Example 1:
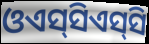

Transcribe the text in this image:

ଓଏସ୍‌ସିଏସ୍‌ସି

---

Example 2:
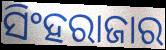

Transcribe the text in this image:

ସିଂହରାଜାର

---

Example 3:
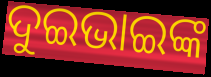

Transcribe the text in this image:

ଦୁଇଭାଇଙ୍କ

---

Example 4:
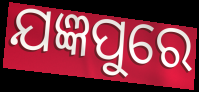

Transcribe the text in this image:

ଯଜ୍ଞପୁରେ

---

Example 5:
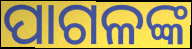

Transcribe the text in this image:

ପାଗଳଙ୍କ